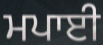
ਮਪਾਈ